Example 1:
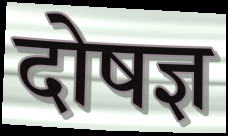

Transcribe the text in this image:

दोषज्ञ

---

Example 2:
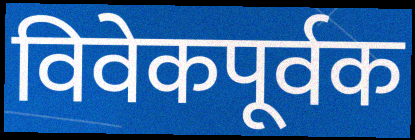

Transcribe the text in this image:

विवेकपूर्वक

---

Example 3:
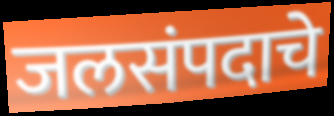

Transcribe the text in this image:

जलसंपदाचे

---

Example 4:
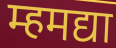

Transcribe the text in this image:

म्हमद्या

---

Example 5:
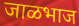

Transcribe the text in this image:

जाळभाज